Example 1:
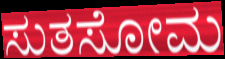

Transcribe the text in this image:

ಸುತಸೋಮ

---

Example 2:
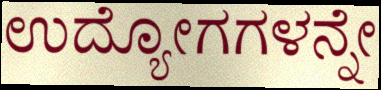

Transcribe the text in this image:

ಉದ್ಯೋಗಗಳನ್ನೇ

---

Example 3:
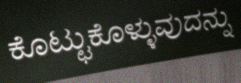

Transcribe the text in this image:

ಕೊಟ್ಟುಕೊಳ್ಳುವುದನ್ನು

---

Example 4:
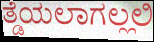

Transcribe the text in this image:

ತ್ಡೆಯಲಾಗಲ್ಲಲಿ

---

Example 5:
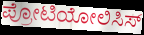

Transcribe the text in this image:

ಪ್ರೋಟಿಯೋಲಿಸಿಸ್